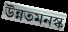
উন্নতমনস্ক